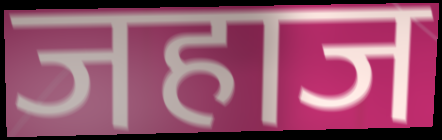
जहाज